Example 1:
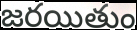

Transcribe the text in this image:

జరయితుం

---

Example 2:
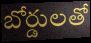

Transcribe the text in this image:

బోర్డులతో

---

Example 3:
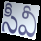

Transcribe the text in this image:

సీవీ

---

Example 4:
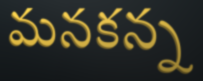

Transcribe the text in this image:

మనకన్న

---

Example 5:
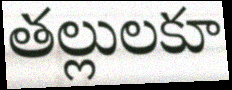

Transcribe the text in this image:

తల్లులకూ